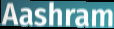
Aashram